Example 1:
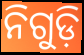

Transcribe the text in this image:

ନିଗୁଡ଼ି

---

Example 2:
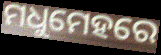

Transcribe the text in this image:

ମଧୁମେହରେ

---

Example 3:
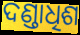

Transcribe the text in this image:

ଦଣ୍ଡାଧିଶ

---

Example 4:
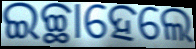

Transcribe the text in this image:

ଇଚ୍ଛାହେଲେ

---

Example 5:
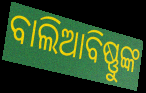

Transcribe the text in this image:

ବାଲିଆବିଷ୍ଣୁଙ୍କ